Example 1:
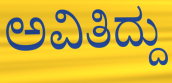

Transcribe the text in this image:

ಅವಿತಿದ್ದು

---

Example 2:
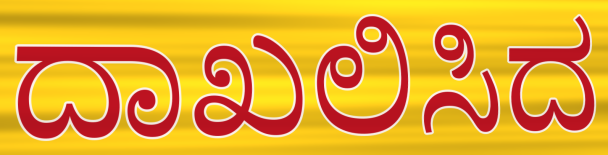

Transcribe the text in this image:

ದಾಖಲಿಸಿದ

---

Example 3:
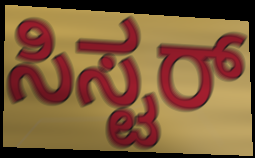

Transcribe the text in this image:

ಸಿಸ್ಟರ್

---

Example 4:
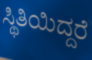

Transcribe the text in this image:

ಸ್ಥಿತಿಯಿದ್ದರೆ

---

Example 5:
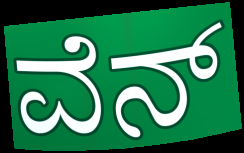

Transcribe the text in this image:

ವೆನ್